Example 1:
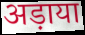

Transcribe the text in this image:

अड़ाया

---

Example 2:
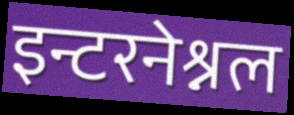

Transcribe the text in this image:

इन्टरनेश्नल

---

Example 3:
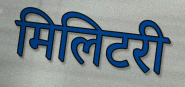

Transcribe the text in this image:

मिलिटरी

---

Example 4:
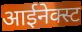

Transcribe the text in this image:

आईनेक्स्ट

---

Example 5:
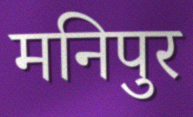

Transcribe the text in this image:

मनिपुर